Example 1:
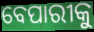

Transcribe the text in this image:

ବେପାରୀକୁ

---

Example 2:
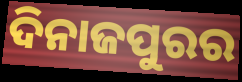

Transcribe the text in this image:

ଦିନାଜପୁରର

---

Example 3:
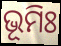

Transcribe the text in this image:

ଭୂମିଃ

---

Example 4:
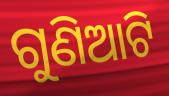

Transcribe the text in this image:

ଗୁଣିଆଟି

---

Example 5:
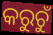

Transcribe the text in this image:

କରୁଚୁଁ